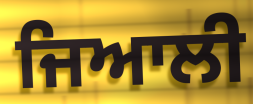
ਜਿਆਲੀ